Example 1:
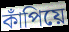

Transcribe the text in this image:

কাঁপিয়ে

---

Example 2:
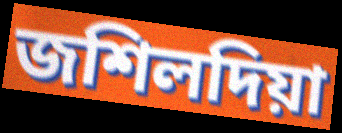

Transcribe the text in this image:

জশিলদিয়া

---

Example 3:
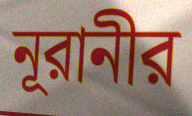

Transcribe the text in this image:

নূরানীর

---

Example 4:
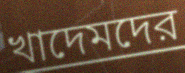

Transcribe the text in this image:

খাদেমদের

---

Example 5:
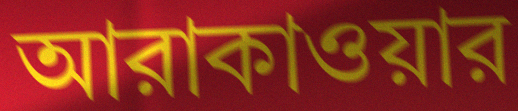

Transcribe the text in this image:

আরাকাওয়ার